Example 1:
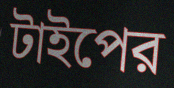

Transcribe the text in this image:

টাইপের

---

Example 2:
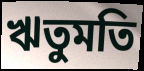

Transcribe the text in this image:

ঋতুমতি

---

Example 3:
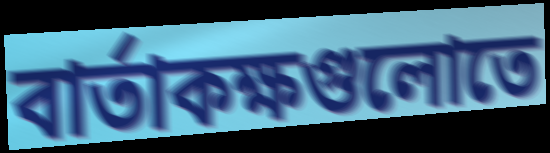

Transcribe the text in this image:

বার্তাকক্ষগুলোতে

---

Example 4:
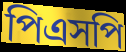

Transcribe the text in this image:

পিএসপি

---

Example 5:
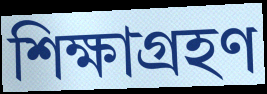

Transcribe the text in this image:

শিক্ষাগ্রহণ